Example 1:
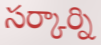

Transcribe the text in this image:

సర్కార్ని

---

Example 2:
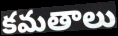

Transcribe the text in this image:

కమతాలు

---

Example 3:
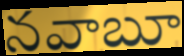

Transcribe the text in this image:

నవాబూ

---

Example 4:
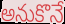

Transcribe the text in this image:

అనుకొనే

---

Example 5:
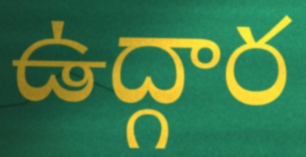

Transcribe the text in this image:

ఉద్గార